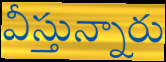
వీస్తున్నారు